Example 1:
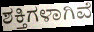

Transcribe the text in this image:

ಶಕ್ತಿಗಳಾಗಿವೆ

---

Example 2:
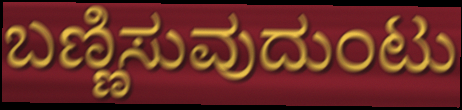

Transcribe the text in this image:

ಬಣ್ಣಿಸುವುದುಂಟು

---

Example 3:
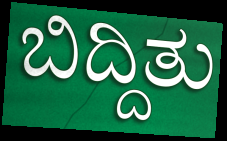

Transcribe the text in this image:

ಬಿದ್ದಿತು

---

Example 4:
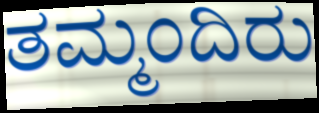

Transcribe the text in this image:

ತಮ್ಮಂದಿರು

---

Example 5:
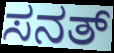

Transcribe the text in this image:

ಸನತ್